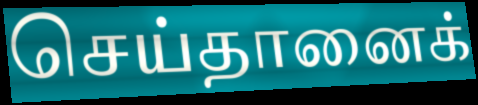
செய்தானைக்